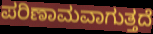
ಪರಿಣಾಮವಾಗುತ್ತದೆ